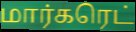
மார்கரெட்